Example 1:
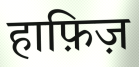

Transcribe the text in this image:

हाफ़िज़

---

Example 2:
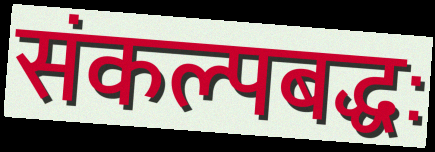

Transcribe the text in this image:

संकल्पबद्धः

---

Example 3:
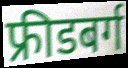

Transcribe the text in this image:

फ्रीडबर्ग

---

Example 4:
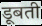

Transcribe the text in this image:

डूबती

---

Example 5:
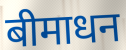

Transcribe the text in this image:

बीमाधन